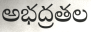
అభద్రతల